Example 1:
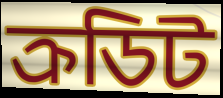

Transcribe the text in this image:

ক্রডিট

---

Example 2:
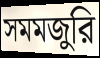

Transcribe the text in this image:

সমমজুরি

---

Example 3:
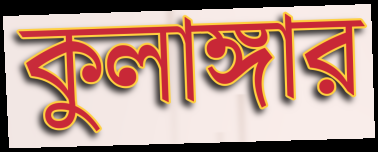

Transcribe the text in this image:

কুলাঙ্গার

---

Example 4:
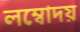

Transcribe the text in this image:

লম্বোদয়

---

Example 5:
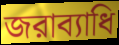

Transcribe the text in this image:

জরাব্যাধি